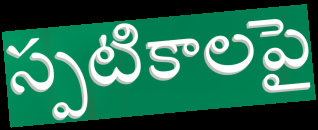
స్పటికాలపై